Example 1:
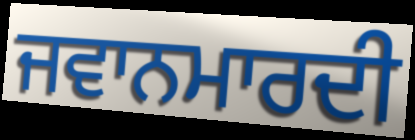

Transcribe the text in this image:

ਜਵਾਨਮਾਰਦੀ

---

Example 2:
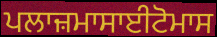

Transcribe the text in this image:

ਪਲਾਜ਼ਮਾਸਾਈਟੋਮਾਸ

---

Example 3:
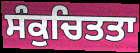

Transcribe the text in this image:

ਸੰਕੁਚਿਤਤਾ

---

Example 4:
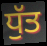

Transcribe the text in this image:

ਧੁੱਤ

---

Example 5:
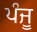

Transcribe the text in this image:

ਪੰਜੂ